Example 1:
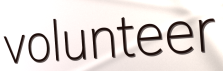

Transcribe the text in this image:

volunteer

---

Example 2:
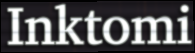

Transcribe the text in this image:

Inktomi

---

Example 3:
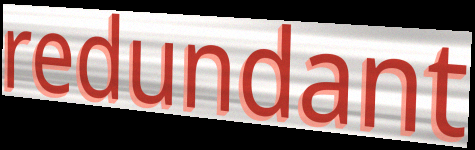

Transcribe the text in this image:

redundant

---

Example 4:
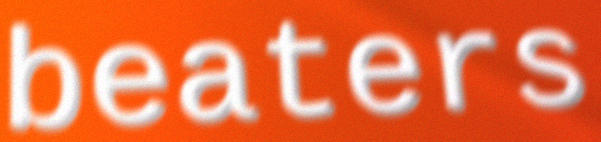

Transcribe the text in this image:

beaters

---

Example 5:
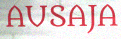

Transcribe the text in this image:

AUSAJA